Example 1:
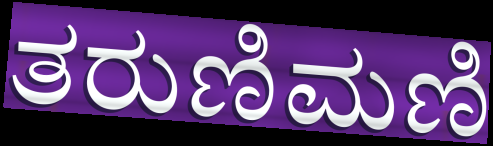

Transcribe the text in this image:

ತರುಣಿಮಣಿ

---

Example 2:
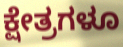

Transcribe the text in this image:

ಕ್ಷೇತ್ರಗಳೂ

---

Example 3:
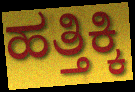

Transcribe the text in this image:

ಹತ್ತಿಕ್ಕಿ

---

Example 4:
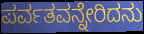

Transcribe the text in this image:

ಪರ್ವತವನ್ನೇರಿದನು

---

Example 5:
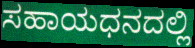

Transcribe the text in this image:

ಸಹಾಯಧನದಲ್ಲಿ